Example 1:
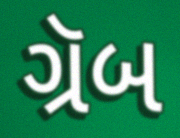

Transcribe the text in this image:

ગ્રૅબ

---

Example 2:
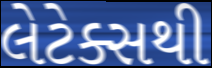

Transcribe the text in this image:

લેટેક્સથી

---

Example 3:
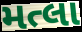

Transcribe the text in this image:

મત્લા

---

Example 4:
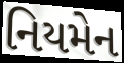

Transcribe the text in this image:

નિયમેન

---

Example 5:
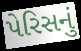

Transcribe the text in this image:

પેરિસનું